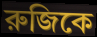
রুজিকে